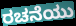
ರಚನೆಯು